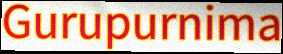
Gurupurnima